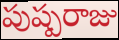
పుష్పరాజు